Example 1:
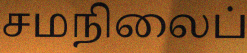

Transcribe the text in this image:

சமநிலைப்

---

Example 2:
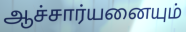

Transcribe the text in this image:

ஆச்சார்யனையும்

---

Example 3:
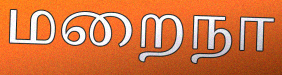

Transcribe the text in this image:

மறைநா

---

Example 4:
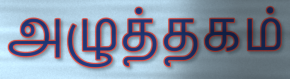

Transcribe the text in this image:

அழுத்தகம்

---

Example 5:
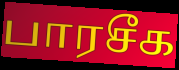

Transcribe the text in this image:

பாரசீக